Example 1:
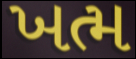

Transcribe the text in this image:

ખત્મ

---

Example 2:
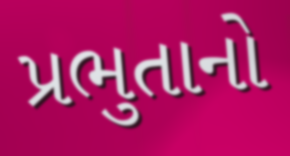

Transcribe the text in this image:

પ્રભુતાનો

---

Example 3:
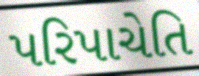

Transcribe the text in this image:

પરિપાચેતિ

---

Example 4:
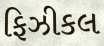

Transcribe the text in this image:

ફિઝીકલ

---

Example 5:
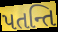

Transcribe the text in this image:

પતન્તિ